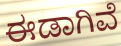
ಈಡಾಗಿವೆ